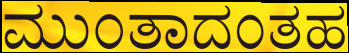
ಮುಂತಾದಂತಹ